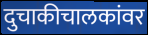
दुचाकीचालकांवर